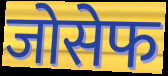
जोसेफ